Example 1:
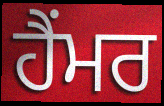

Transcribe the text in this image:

ਹੈਂਮਰ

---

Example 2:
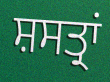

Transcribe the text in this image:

ਸ਼ਸਤ੍ਰਾਂ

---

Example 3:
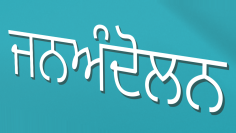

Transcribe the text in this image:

ਜਨਅੰਦੋਲਨ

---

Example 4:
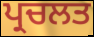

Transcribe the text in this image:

ਪ੍ਰਚਲਤ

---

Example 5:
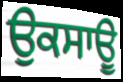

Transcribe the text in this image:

ਉਕਸਾਊ